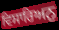
ਵਿਸਾਰਿਅਨੁ